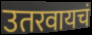
उतरवायचं